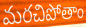
మరచిపోతాం